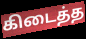
கிடைத்த